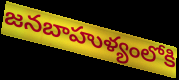
జనబాహుళ్యంలోకి